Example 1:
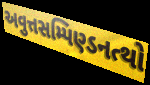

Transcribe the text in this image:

અવુત્તસમ્પિણ્ડનત્થો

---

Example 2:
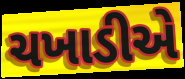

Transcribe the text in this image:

ચખાડીએ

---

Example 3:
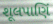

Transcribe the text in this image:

શૂલપાણિં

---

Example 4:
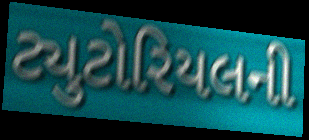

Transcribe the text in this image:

ટ્યુટોરિયલની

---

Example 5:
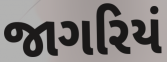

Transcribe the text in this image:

જાગરિયં